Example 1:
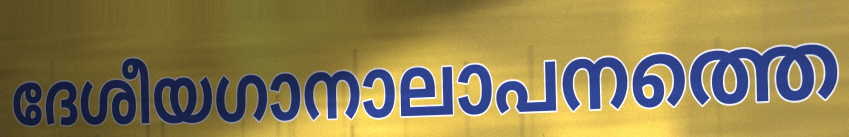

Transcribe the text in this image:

ദേശീയഗാനാലാപനത്തെ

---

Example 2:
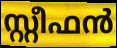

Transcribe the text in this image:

സ്റ്റീഫൻ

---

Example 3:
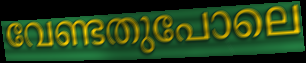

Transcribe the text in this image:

വേണ്ടതുപോലെ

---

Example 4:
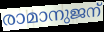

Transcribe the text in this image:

രാമാനുജന്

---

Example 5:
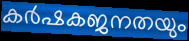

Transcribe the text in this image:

കർഷകജനതയും